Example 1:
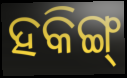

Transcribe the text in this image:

ହକିଙ୍ଗ୍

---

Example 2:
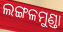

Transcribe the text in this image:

ଲଙ୍ଗଳମୁଣ୍ଡା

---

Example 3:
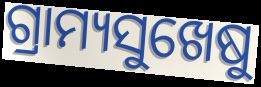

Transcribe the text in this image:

ଗ୍ରାମ୍ୟସୁଖେଷୁ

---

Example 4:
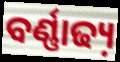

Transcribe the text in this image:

ବର୍ଣ୍ଣାଢ୍ୟ଼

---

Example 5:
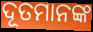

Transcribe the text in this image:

ଦୂତମାନଙ୍କ